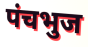
पंचभुज